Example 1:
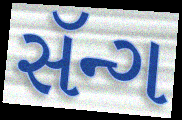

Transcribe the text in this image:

સૅન્ગ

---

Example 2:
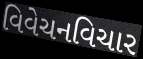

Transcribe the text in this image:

વિવેચનવિચાર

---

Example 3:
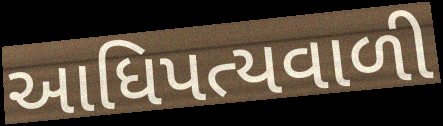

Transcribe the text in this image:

આધિપત્યવાળી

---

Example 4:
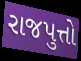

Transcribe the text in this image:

રાજપુત્તો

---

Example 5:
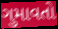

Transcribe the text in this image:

ગુમાવતો